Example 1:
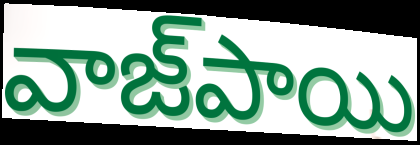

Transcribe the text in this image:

వాజ్‌పాయి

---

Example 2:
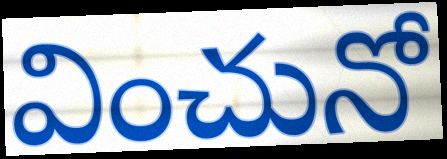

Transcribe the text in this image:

వించునో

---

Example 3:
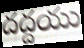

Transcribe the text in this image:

దద్దయు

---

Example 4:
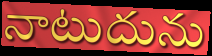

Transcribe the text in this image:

నాటుదును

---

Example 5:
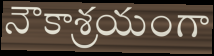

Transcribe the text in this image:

నౌకాశ్రయంగా